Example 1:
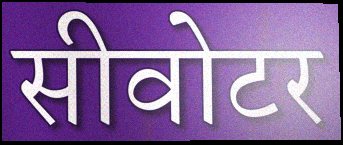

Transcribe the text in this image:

सीवोटर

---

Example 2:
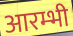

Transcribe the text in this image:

आरम्भी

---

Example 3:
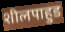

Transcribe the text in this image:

शीलपाहुड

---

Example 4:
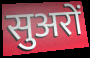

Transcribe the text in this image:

सुअरों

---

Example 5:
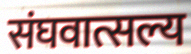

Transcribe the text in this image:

संघवात्सल्य